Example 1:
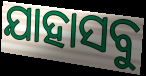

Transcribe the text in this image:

ଯାହାସବୁ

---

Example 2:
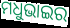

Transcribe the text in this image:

ମଧୁଭାଇର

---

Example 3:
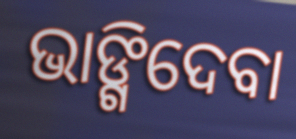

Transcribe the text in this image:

ଭାଙ୍ଗିଦେବା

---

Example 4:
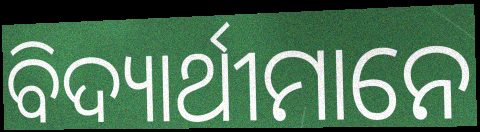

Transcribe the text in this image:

ବିଦ୍ୟାର୍ଥୀମାନେ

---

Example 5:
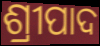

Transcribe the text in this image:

ଶ୍ରୀପାଦ